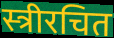
स्त्रीरचित